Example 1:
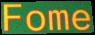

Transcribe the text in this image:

Fome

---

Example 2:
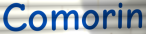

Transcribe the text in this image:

Comorin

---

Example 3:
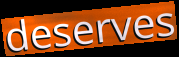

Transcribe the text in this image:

deserves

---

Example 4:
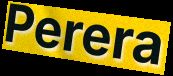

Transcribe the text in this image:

Perera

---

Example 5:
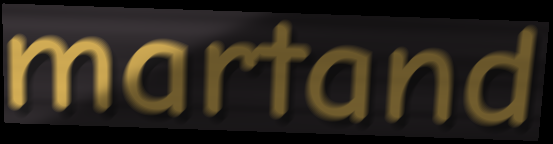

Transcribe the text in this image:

martand